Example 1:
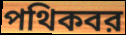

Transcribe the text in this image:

পথিকবর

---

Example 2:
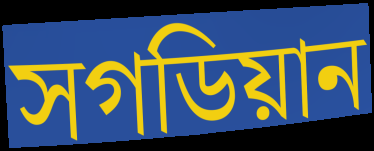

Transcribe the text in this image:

সগডিয়ান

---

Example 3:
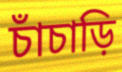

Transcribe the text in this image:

চাঁচাড়ি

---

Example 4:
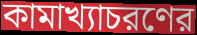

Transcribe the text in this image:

কামাখ্যাচরণের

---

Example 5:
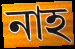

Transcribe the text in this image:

নাহ